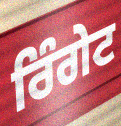
ਰਿੰਗੇਟ